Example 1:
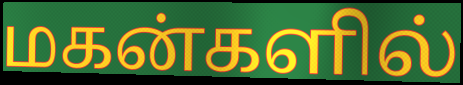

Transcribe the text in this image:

மகன்களில்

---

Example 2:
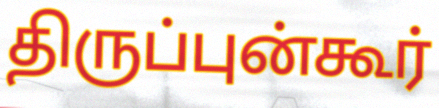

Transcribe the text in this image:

திருப்புன்கூர்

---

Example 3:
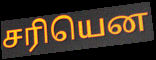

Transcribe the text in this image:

சரியென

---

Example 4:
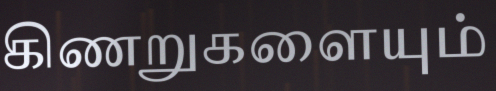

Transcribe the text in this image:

கிணறுகளையும்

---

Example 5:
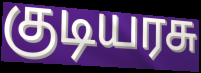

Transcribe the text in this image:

குடியரசு